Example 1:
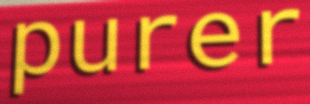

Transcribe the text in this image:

purer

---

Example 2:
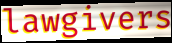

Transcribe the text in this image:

lawgivers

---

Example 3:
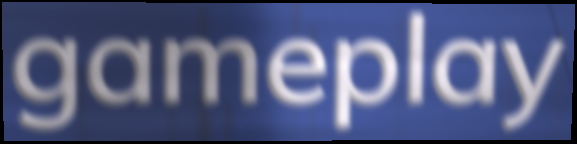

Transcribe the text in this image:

gameplay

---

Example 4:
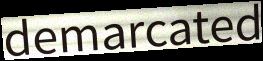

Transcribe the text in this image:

demarcated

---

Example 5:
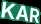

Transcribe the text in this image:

KAR